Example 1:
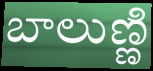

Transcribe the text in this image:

బాలుణ్ణి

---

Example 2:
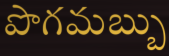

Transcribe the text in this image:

పొగమబ్బు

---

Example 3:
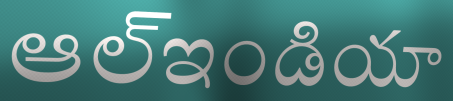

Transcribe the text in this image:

ఆల్ఇండియా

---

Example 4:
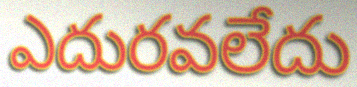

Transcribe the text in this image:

ఎదురవలేదు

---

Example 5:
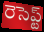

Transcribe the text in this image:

రెసెప్ట్